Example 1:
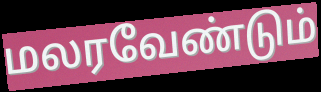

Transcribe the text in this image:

மலரவேண்டும்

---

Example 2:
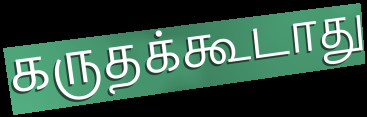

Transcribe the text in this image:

கருதக்கூடாது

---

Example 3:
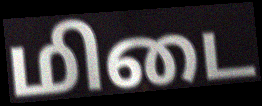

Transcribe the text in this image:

மிடை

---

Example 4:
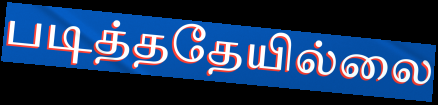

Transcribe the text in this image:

படித்ததேயில்லை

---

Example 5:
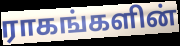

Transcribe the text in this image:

ராகங்களின்